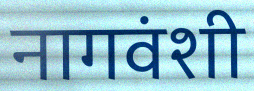
नागवंशी